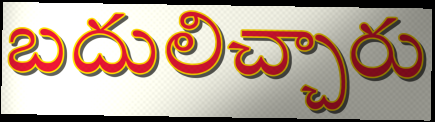
బదులిచ్చారు